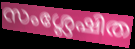
സംശ്ലേഷിത